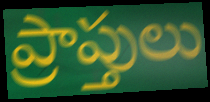
ప్రాప్తులు